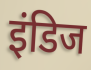
इंडिज